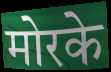
मोरके